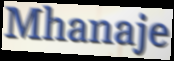
Mhanaje